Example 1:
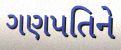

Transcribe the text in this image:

ગણપતિને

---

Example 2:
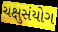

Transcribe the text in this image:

ચક્ષુસંયોગ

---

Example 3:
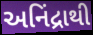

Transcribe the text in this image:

અનિંદ્રાથી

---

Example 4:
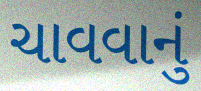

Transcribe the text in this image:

ચાવવાનું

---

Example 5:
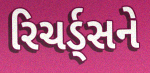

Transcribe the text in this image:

રિચર્ડ્સને